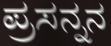
ಪ್ರಸನ್ನನ